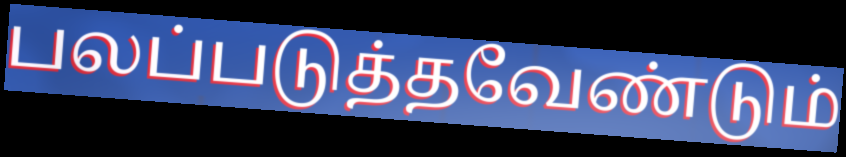
பலப்படுத்தவேண்டும்